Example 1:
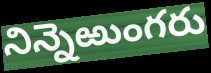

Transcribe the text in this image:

నిన్నెఱుంగరు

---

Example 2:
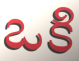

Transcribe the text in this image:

ఒకి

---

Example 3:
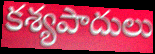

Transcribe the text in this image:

కశ్యపాదులు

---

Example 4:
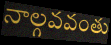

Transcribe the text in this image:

నాల్గవవంతు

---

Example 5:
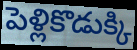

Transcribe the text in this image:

పెళ్లికొడుక్కి